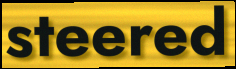
steered